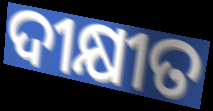
ଦୀକ୍ଷୀତ